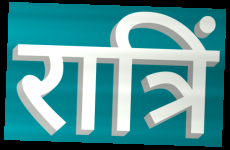
रात्रिं